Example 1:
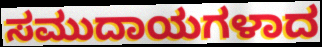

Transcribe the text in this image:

ಸಮುದಾಯಗಳಾದ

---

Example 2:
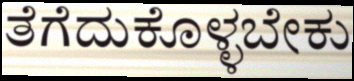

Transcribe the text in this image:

ತೆಗೆದುಕೊಳ್ಳಬೇಕು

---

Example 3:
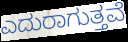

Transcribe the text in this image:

ಎದುರಾಗುತ್ತವೆ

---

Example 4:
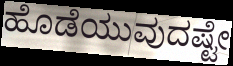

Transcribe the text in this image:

ಹೊಡೆಯುವುದಷ್ಟೇ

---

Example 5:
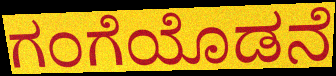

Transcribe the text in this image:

ಗಂಗೆಯೊಡನೆ